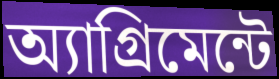
অ্যাগ্রিমেন্টে